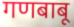
गणबाबू